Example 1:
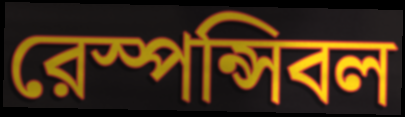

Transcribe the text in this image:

রেস্পন্সিবল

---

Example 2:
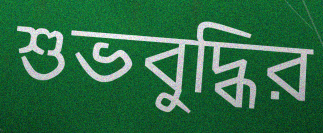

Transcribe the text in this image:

শুভবুদ্ধির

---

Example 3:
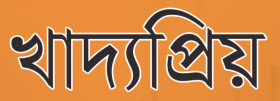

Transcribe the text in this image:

খাদ্যপ্রিয়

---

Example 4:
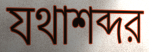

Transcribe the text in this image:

যথাশব্দর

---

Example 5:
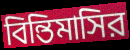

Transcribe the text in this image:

বিন্তিমাসির